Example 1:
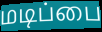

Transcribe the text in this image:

மடிப்பை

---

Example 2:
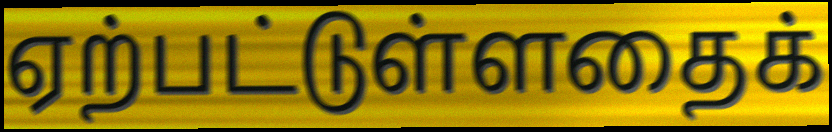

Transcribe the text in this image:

ஏற்பட்டுள்ளதைக்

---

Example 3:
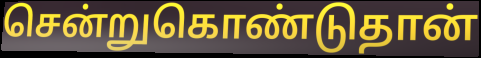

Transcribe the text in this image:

சென்றுகொண்டுதான்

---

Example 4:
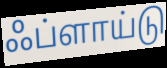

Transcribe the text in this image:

ஃப்ளாய்டு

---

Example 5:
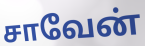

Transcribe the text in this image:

சாவேன்